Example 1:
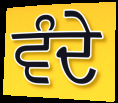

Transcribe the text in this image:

ਵੰਦੇ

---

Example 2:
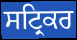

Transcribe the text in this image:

ਸਟ੍ਰਿਕਰ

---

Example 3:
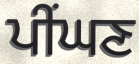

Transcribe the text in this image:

ਪੀਂਘਣ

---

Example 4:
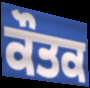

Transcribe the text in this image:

ਕੌਤਕ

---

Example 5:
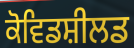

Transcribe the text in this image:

ਕੋਵਿਡਸ਼ੀਲਡ